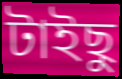
টাইছু